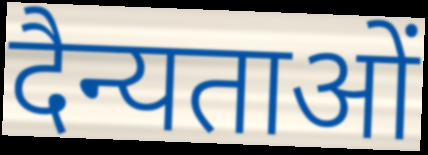
दैन्यताओं